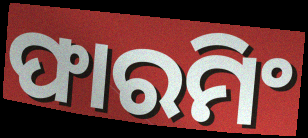
ଫାରମିଂ